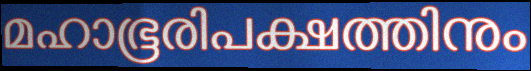
മഹാഭൂരിപക്ഷത്തിനും